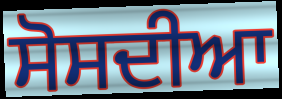
ਸੋਸਦੀਆ